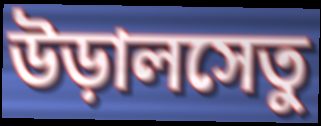
উড়ালসেতু